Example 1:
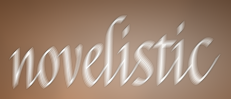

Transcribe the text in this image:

novelistic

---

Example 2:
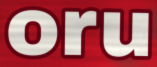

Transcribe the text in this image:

oru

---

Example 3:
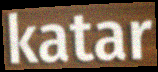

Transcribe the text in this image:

katar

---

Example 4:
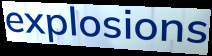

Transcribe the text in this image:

explosions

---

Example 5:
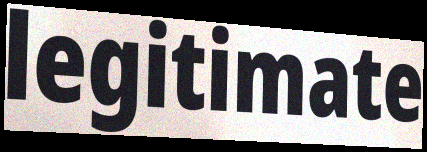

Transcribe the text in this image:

legitimate